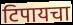
टिपायचा